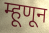
म्हूणून